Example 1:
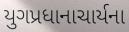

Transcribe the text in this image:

યુગપ્રધાનાચાર્યના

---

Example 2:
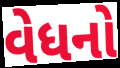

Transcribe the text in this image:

વેધનો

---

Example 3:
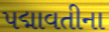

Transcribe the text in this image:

પદ્માવતીના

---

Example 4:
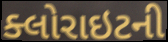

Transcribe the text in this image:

ક્લોરાઇટની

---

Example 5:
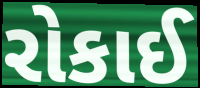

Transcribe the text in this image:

રોકાઈ